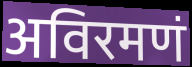
अविरमणं